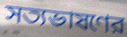
সত্যভাষণের